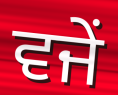
ਵਜੇਂ